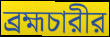
ব্রহ্মচারীর